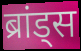
ब्रांड्स